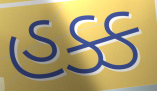
હક્ક